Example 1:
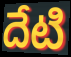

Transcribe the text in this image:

దేటి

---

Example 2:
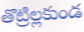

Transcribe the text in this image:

తొట్రిల్లకుండ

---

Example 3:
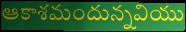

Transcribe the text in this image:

ఆకాశమందున్నవియు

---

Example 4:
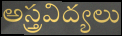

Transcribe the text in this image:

అస్త్రవిద్యలు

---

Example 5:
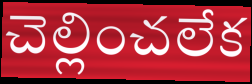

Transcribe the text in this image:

చెల్లించలేక